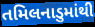
તમિલનાડુમાંથી